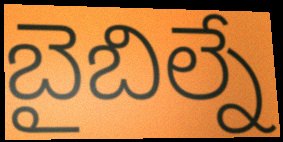
బైబిల్నే